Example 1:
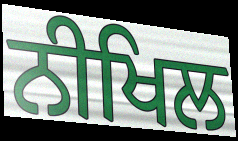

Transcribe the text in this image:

ਨੀਖਿਲ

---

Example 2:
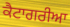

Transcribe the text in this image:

ਕੈਟਾਗਰੀਆ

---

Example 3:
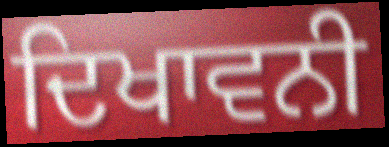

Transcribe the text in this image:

ਦਿਖਾਵਨੀ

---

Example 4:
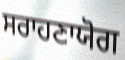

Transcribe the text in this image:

ਸਰਾਹਣਾਯੋਗ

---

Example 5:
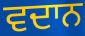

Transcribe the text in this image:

ਵਦਾਨ